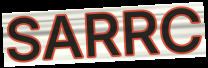
SARRC